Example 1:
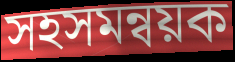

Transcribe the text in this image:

সহসমন্বয়ক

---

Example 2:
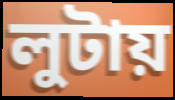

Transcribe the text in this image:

লুটায়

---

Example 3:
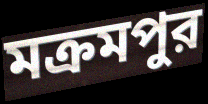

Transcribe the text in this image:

মক্রমপুর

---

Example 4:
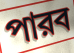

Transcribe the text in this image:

পারব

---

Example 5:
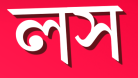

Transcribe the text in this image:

লস